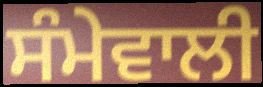
ਸੰਮੇਵਾਲੀ